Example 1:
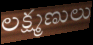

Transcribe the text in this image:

లక్ష్మణులు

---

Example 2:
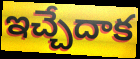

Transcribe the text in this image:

ఇచ్చేదాక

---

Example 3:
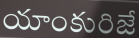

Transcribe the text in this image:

యాంకురిజే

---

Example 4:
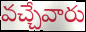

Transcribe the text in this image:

వచ్చేవారు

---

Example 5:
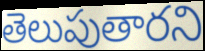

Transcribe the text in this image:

తెలుపుతారని